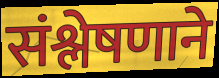
संश्लेषणाने